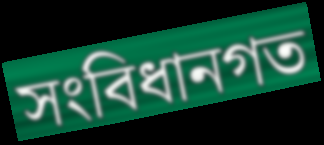
সংবিধানগত